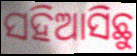
ସହିଆସିଛୁ